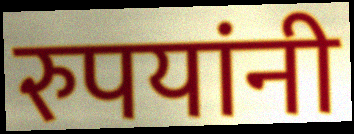
रुपयांनी